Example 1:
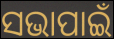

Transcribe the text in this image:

ସଭାପାଇଁ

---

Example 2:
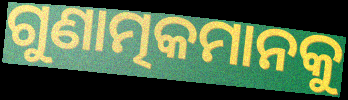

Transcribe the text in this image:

ଗୁଣାତ୍ମକମାନକୁ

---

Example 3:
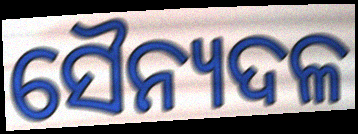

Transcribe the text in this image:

ସୈନ୍ୟଦଳ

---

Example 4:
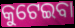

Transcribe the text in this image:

କୁଟେଇବା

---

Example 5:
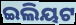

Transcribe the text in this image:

ଇଲିୟଟ